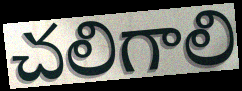
చలిగాలి